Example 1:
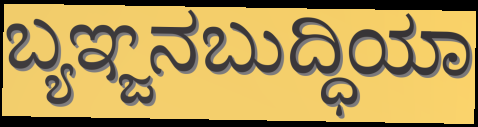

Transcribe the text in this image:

ಬ್ಯಞ್ಜನಬುದ್ಧಿಯಾ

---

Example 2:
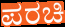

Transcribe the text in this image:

ಪರಚಿ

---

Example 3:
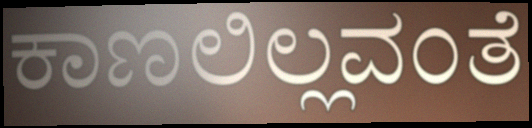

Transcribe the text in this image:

ಕಾಣಲಿಲ್ಲವಂತೆ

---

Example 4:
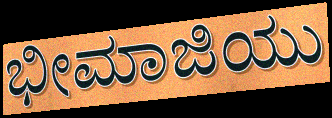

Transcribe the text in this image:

ಭೀಮಾಜಿಯು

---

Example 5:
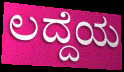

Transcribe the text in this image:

ಲದ್ದೆಯ